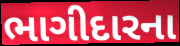
ભાગીદારના